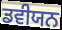
ਡਵੀਯਨ